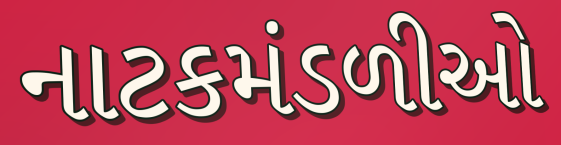
નાટકમંડળીઓ